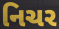
નિચર